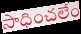
సాధించలేం